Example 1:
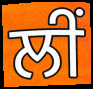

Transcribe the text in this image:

ਲੀਂ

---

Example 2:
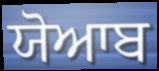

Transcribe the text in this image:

ਯੋਆਬ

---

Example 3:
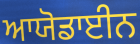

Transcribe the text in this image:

ਆਯੋਡਾਈਨ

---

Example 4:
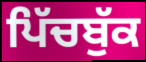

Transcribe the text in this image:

ਪਿੱਚਬੁੱਕ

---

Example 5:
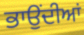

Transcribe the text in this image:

ਭਾਉਂਦੀਆਂ